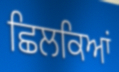
ਛਿਲਕਿਆਂ